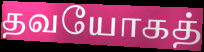
தவயோகத்